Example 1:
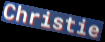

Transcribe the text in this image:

Christie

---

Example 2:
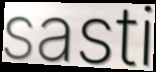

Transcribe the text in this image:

sasti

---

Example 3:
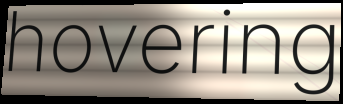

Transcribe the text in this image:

hovering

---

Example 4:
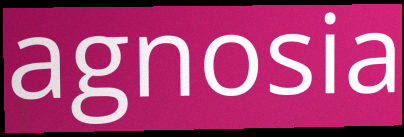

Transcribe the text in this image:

agnosia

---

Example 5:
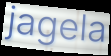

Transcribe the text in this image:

jagela